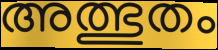
അത്ഭുതം